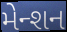
મેન્શન